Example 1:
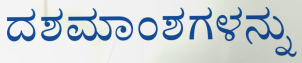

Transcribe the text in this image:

ದಶಮಾಂಶಗಳನ್ನು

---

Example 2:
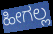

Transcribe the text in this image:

ಹೀಗಲ್ಲ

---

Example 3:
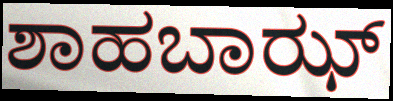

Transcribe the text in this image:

ಶಾಹಬಾಝ್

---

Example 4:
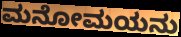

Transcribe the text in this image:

ಮನೋಮಯನು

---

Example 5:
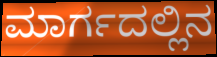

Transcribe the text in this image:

ಮಾರ್ಗದಲ್ಲಿನ